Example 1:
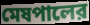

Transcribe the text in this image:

মেষপালের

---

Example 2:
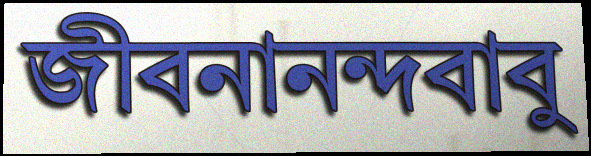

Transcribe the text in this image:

জীবনানন্দবাবু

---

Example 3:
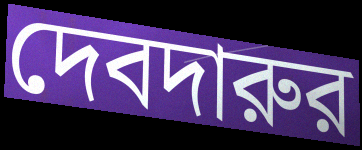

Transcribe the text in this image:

দেবদারুর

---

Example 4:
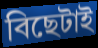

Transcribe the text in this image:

বিছেটাই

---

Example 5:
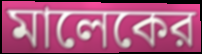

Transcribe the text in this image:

মালেকের